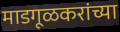
माडगूळकरांच्या